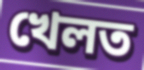
খেলত